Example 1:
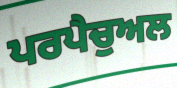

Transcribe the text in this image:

ਪਰਪੈਚੁਅਲ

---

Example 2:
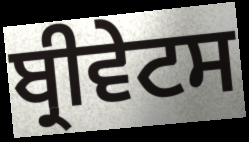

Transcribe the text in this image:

ਬ੍ਰੀਵੇਟਸ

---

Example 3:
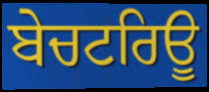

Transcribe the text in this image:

ਬੇਚਟਰਿਊ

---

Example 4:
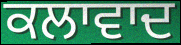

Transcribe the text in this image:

ਕਲਾਵਾਦ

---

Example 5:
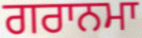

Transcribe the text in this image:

ਗਰਾਨਮਾ